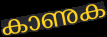
കാണുക